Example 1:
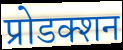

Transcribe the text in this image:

प्रोडक्शन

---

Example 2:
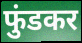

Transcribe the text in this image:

फुंडकर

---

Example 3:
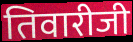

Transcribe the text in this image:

तिवारीजी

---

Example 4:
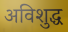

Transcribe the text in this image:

अविशुद्ध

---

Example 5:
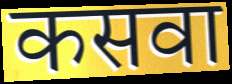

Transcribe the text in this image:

कसवा